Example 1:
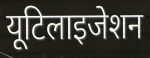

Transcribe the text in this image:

यूटिलाइजेशन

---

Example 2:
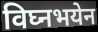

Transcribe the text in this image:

विघ्नभयेन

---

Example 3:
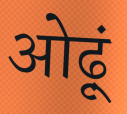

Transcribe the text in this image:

ओढ़ूं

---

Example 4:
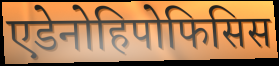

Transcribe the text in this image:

एडेनोहिपोफिसिस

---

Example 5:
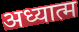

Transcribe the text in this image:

अध्यात्म